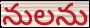
నులను